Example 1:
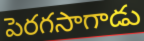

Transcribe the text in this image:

పెరగసాగాడు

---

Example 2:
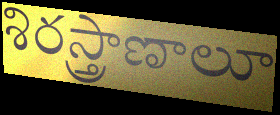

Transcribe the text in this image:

శిరస్త్రాణాలూ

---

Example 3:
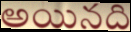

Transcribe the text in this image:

అయినది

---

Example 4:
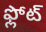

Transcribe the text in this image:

ఫ్లోట్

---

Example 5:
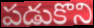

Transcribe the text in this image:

పడుకొని